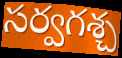
సర్వగశ్చ